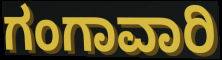
ಗಂಗಾವಾರಿ